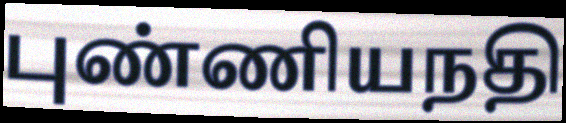
புண்ணியநதி